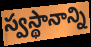
స్వస్థానాన్ని